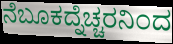
ನೆಬೂಕದ್ನೆಚ್ಚರನಿಂದ